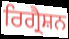
ਰਿਗ੍ਰੈਸ਼ਨ